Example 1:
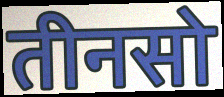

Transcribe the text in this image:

तीनसो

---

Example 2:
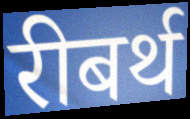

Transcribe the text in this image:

रीबर्थ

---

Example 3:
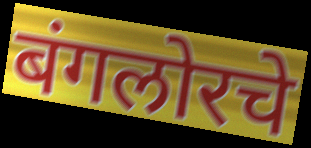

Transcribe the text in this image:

बंगलोरचे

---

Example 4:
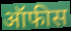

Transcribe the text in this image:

ऑफीस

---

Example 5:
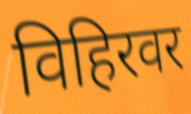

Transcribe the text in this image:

विहिरवर